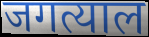
जगत्याल